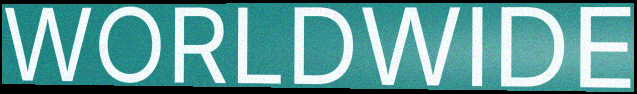
WORLDWIDE